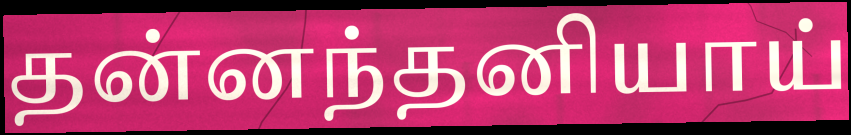
தன்னந்தனியாய்